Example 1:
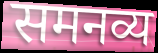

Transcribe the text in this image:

समनव्य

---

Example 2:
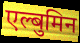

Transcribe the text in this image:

एल्बुमिन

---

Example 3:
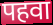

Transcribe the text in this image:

पहवा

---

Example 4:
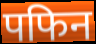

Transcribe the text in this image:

पफिन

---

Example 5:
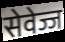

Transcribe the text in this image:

सेवेज्ज